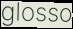
glosso